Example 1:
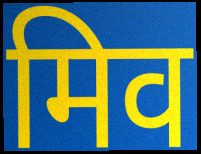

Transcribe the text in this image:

मिव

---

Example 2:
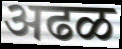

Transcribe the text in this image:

अढळ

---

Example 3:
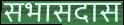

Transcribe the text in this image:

सभासदास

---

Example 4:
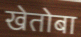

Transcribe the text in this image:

खेतोबा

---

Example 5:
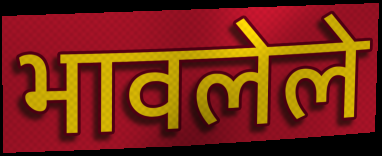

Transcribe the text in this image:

भावलेले